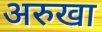
अरुखा